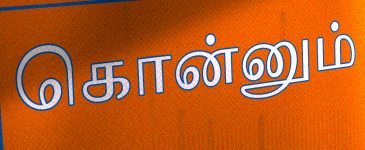
கொன்னும்